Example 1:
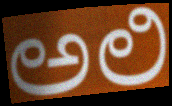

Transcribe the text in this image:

ಅಲಿ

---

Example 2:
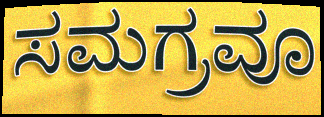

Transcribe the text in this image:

ಸಮಗ್ರವೂ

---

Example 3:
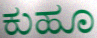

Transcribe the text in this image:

ಕುಹೂ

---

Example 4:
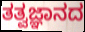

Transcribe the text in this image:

ತತ್ವಜ್ಞಾನದ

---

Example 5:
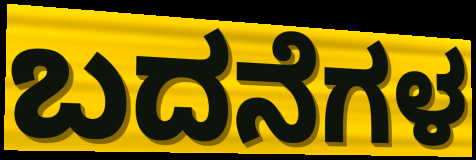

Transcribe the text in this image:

ಬದನೆಗಳ